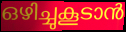
ഒഴിച്ചുകൂടാൻ